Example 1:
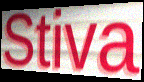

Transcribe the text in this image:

Stiva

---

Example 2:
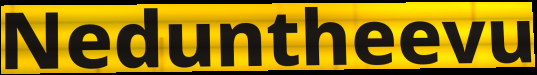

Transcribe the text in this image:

Neduntheevu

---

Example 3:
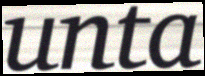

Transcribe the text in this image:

unta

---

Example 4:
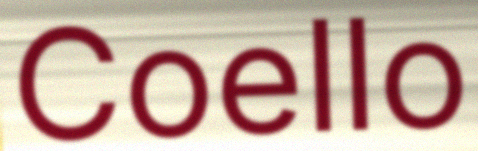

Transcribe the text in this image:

Coello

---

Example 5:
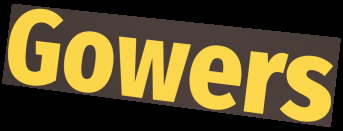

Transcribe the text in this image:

Gowers